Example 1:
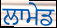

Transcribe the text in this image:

ਲਾਮੇਡ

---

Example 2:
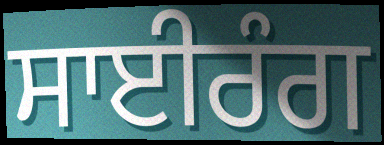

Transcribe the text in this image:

ਸਾਈਰੰਗ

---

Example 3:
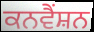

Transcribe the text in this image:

ਕਨਵੈੰਸ਼ਨ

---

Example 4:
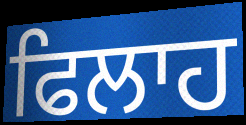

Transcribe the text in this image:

ਫਿਲਾਹ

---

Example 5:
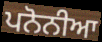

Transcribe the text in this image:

ਪਨੋਨੀਆ